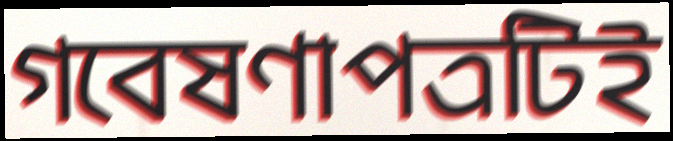
গবেষণাপত্রটিই